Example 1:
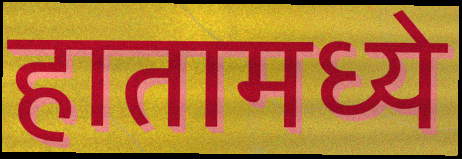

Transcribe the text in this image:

हातामध्ये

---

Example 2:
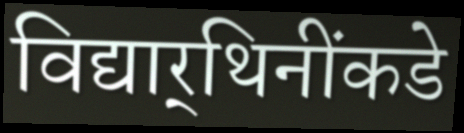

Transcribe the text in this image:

विद्यार्थिनींकडे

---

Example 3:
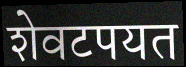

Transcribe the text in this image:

शेवटपयत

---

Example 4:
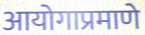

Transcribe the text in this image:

आयोगाप्रमाणे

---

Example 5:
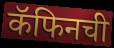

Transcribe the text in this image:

कॅफिनची